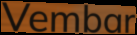
Vembar